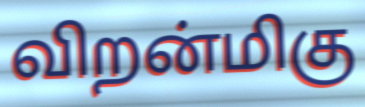
விறன்மிகு